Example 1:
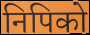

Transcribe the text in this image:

निपिको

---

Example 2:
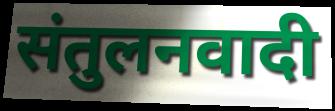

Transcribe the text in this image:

संतुलनवादी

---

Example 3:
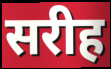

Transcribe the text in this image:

सरीह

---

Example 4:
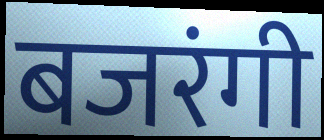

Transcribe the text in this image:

बजरंगी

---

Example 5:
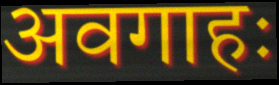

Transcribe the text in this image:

अवगाहः